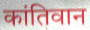
कांतिवान